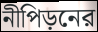
নীপিড়নের